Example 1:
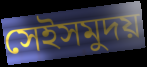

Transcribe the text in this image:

সেইসমুদয়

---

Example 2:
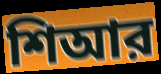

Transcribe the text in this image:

শিআর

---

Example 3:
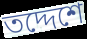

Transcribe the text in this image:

তদ্দেশে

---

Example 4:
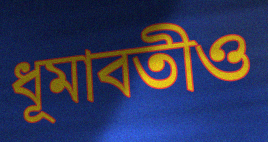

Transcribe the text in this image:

ধূমাবতীও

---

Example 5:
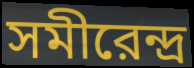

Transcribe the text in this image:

সমীরেন্দ্র